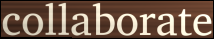
collaborate